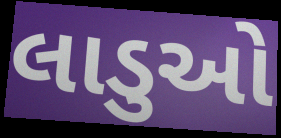
લાડુઓ